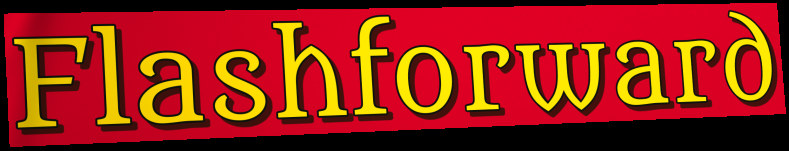
Flashforward